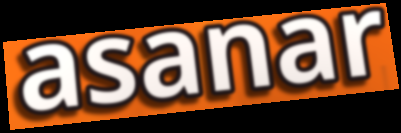
asanar